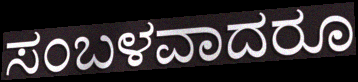
ಸಂಬಳವಾದರೂ